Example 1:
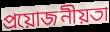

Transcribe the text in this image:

প্ৰয়োজনীয়তা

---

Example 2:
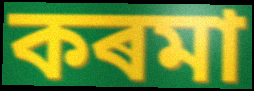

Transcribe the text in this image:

কৰমা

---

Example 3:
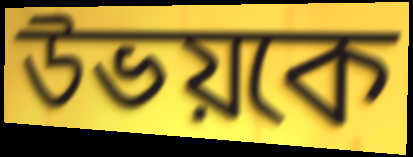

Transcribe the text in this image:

উভয়কে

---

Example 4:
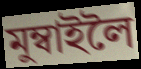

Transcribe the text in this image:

মুম্বাইলৈ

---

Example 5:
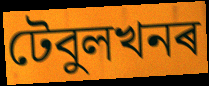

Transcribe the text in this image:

টেবুলখনৰ